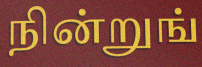
நின்றுங்